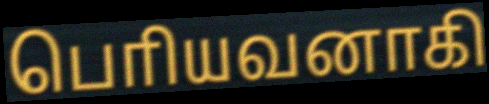
பெரியவனாகி